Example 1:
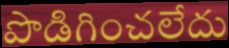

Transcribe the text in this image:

పొడిగించలేదు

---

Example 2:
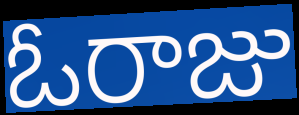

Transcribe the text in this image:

ఓరాజు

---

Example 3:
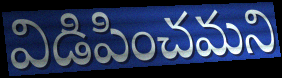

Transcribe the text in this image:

విడిపించమని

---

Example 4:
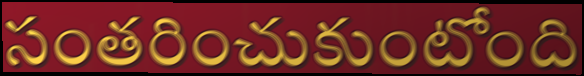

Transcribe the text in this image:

సంతరించుకుంటోంది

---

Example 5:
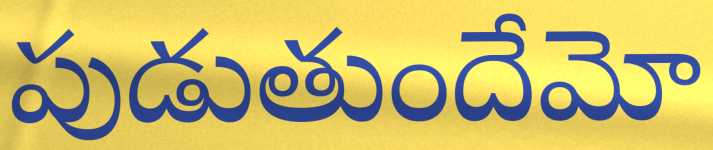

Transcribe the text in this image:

పుడుతుందేమో